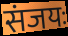
संजयः